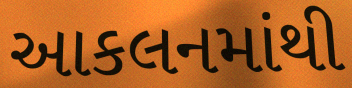
આકલનમાંથી